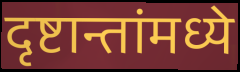
दृष्टान्तांमध्ये